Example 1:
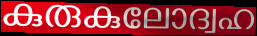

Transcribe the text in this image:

കുരുകുലോദ്വഹ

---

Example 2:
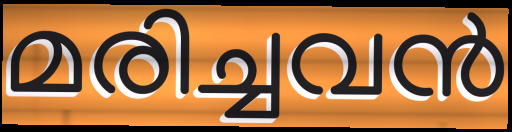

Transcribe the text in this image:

മരിച്ചവൻ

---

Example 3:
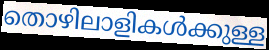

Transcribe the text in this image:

തൊഴിലാളികൾക്കുള്ള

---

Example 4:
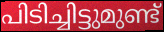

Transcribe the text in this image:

പിടിച്ചിട്ടുമുണ്ട്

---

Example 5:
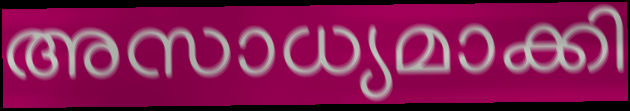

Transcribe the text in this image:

അസാധ്യമാക്കി